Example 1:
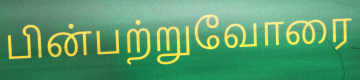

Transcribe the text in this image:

பின்பற்றுவோரை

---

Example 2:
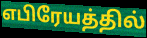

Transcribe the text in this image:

எபிரேயத்தில்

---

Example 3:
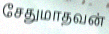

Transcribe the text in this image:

சேதுமாதவன்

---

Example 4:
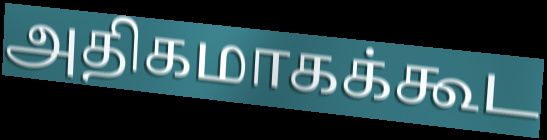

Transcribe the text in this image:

அதிகமாகக்கூட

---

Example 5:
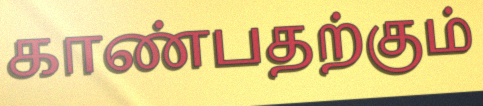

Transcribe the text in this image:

காண்பதற்கும்